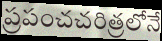
ప్రపంచచరిత్రలోనే